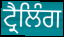
ਟ੍ਰੈਲਿੰਗ